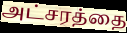
அட்சரத்தை